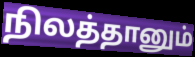
நிலத்தானும்